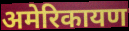
अमेरिकायण